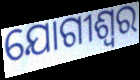
ଯୋଗୀଶ୍ୱର